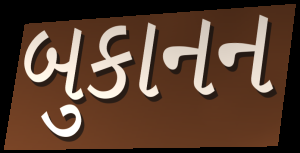
બુકાનન